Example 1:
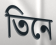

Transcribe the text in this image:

তিনে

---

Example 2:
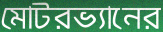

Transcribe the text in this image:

মোটরভ্যানের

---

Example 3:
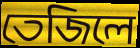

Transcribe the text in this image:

তেজিলে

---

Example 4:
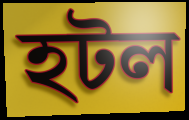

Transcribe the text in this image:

হটল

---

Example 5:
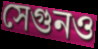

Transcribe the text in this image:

সেগুনও